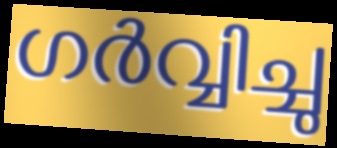
ഗർവ്വിച്ചു